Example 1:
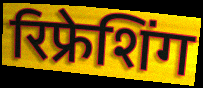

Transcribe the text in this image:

रिफ्रेशिंग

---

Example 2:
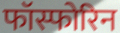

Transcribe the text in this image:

फॉस्फोरिन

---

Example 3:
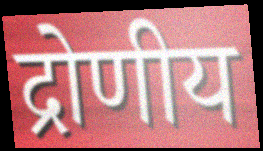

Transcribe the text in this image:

द्रोणीय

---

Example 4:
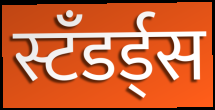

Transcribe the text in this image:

स्टँडर्ड्स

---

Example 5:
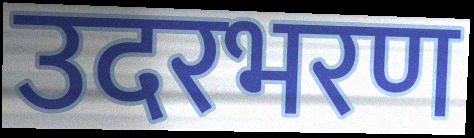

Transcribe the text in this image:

उदरभरण